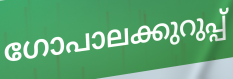
ഗോപാലക്കുറുപ്പ്